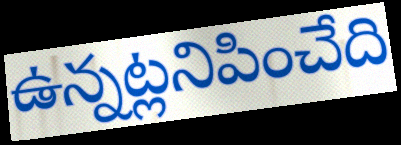
ఉన్నట్లనిపించేది